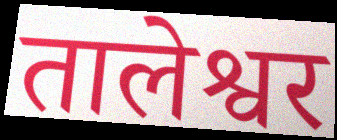
तालेश्वर